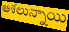
ఆశలున్నాయి